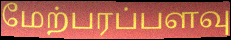
மேற்பரப்பளவு